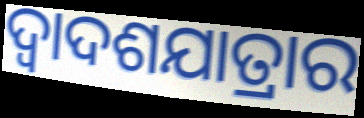
ଦ୍ୱାଦଶଯାତ୍ରାର